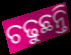
ଚଢୁଛନ୍ତି